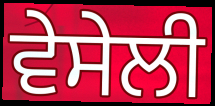
ਵੇਸੇਲੀ